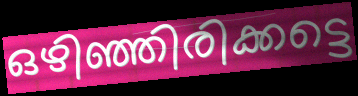
ഒഴിഞ്ഞിരിക്കട്ടെ